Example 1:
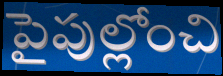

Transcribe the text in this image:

పైపుల్లోంచి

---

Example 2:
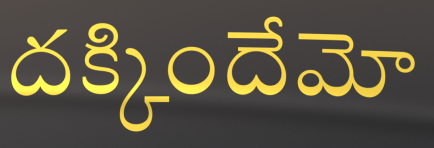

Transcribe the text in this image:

దక్కిందేమో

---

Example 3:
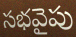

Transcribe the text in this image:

సభవైపు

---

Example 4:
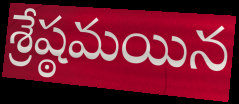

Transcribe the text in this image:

శ్రేష్ఠమయిన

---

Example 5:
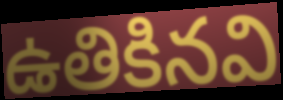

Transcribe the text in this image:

ఉతికినవి